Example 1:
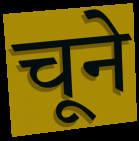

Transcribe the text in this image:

चूने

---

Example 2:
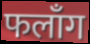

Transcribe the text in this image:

फलाँग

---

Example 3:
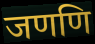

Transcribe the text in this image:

जणणि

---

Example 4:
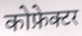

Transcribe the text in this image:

कोफ़ेक्टर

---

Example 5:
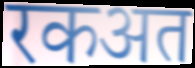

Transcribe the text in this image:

रकअत